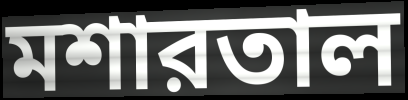
মশারতাল